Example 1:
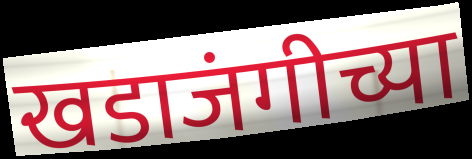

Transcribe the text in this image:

खडाजंगीच्या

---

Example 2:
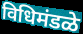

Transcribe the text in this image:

विधिमंडळे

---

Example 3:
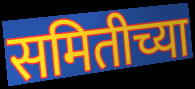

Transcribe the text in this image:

समितीच्या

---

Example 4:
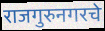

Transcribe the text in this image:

राजगुरुनगरचे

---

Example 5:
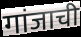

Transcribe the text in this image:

गांजाची